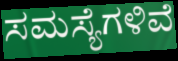
ಸಮಸ್ಯೆಗಳಿವೆ